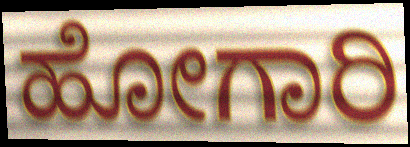
ಹೋಗಾರಿ